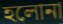
হলোনা